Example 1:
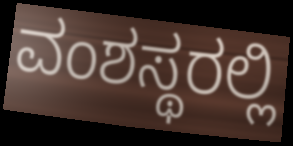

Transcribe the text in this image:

ವಂಶಸ್ಥರಲ್ಲಿ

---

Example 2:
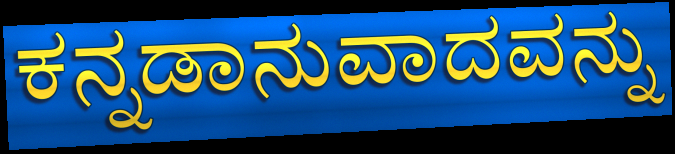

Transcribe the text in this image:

ಕನ್ನಡಾನುವಾದವನ್ನು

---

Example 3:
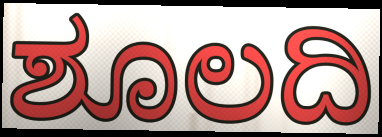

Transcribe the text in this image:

ಶೂಲದಿ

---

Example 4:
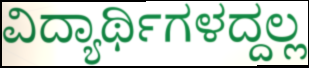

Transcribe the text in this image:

ವಿದ್ಯಾರ್ಥಿಗಳದ್ದಲ್ಲ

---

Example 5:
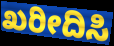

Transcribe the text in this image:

ಖರೀದಿಸಿ